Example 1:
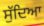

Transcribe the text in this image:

ਸੁੱਦਿਆ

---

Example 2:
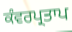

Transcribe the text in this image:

ਕੰਵਰਪ੍ਰਤਾਪ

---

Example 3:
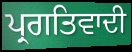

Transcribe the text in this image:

ਪ੍ਰਗਤਿਵਾਦੀ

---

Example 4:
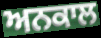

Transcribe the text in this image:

ਅਨਕਾਲ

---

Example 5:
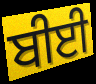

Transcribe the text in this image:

ਬੀਈ